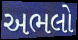
અભલો